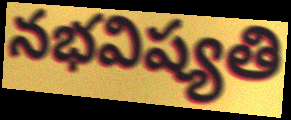
నభవిష్యతి